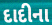
દાદીના